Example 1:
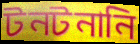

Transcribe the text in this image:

টনটনানি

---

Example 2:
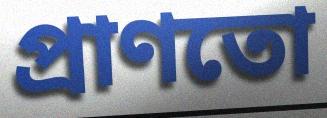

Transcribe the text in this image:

প্রাণতো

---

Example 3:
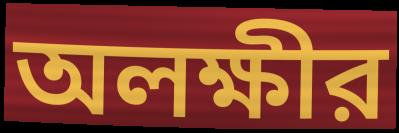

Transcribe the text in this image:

অলক্ষীর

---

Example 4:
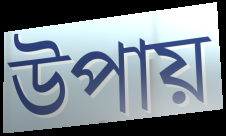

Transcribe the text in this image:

উপায়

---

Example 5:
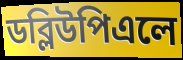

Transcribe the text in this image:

ডব্লিউপিএলে